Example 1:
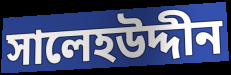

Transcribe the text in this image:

সালেহউদ্দীন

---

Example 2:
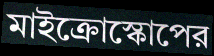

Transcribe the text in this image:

মাইক্রোস্কোপের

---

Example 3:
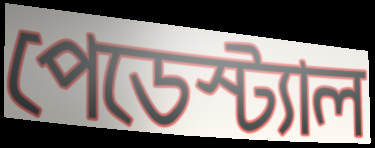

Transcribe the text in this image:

পেডেস্ট্যাল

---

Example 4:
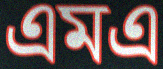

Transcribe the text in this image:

এমএ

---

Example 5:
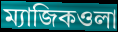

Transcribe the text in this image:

ম্যাজিকওলা